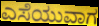
ಎಸೆಯುವಾಗ